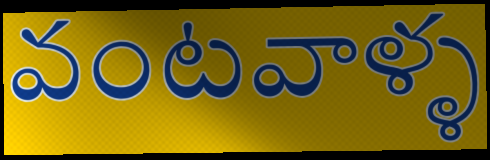
వంటవాళ్ళ